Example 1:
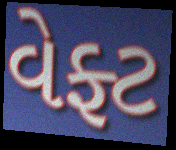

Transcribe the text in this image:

વેફ્ટ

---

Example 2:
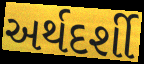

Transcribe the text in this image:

અર્થદર્શી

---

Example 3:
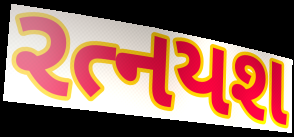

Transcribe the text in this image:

રત્નયશ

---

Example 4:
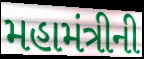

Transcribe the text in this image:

મહામંત્રીની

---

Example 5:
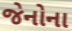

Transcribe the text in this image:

જેનોના